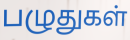
பழுதுகள்